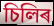
চিলিৰ